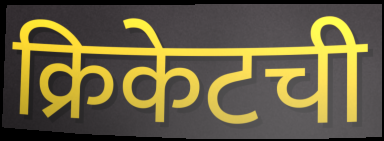
क्रिकेटची